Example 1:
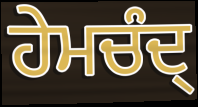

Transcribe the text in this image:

ਹੇਮਚੰਦ੍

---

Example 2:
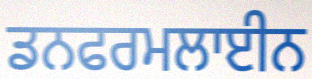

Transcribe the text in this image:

ਡਨਫਰਮਲਾਈਨ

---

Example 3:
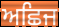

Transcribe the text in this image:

ਅਛਿਜ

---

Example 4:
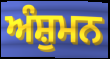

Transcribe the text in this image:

ਅੰਸ਼ੁਮਨ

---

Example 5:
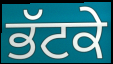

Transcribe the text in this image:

ਭੱਟਕੇ